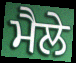
ਮੈਲੇ